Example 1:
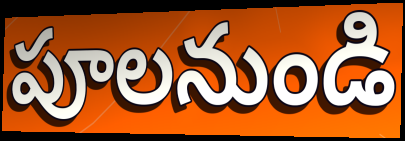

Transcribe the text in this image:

పూలనుండి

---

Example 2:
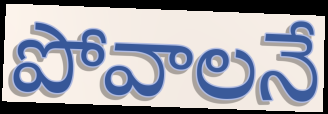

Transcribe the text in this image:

పోవాలనే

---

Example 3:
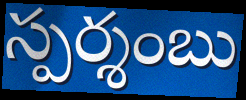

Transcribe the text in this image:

స్పర్శంబు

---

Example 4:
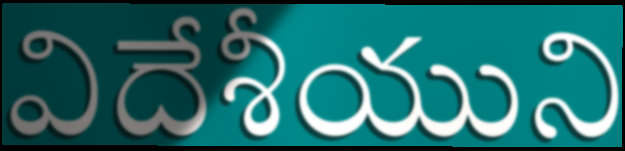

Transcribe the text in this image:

విదేశీయుని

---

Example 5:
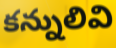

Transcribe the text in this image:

కన్నులివి